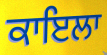
ਕਾਇਲਾ